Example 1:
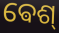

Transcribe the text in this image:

ଵେଶ୍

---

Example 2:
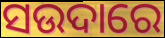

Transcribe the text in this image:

ସଉଦାରେ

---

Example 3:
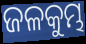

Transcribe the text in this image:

ଜଳକୁମ୍ଭ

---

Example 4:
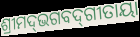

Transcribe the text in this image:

ଶ୍ରୀମଦ୍‌ଭଗବଦ୍‌ଗୀତାୟା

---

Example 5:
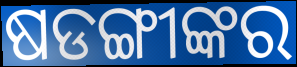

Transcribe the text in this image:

ଷଡଙ୍ଗୀଙ୍କର